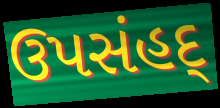
ઉપસંહદ્